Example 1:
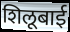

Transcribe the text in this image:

शिलूबाई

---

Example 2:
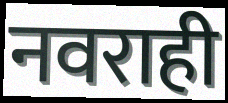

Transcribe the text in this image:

नवराही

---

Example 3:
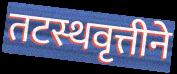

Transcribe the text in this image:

तटस्थवृत्तीने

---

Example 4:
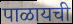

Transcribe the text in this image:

पाळायची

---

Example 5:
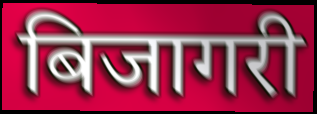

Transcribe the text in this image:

बिजागरी